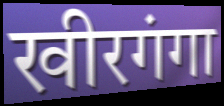
खीरगंगा